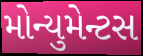
મોન્યુમેન્ટસ